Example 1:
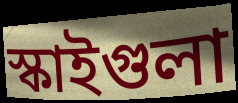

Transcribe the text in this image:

স্কাইগুলা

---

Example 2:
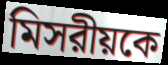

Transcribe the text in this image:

মিসরীয়কে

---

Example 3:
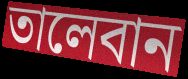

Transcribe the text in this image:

তালেবান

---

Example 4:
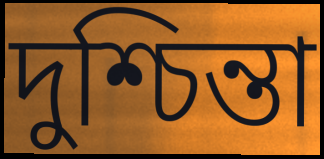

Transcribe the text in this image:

দুশ্চিন্তা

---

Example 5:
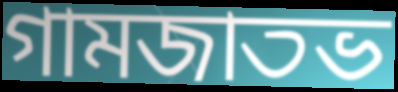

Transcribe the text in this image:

গামজাতভ